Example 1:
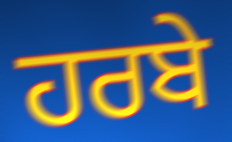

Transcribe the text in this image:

ਹਰਬੇ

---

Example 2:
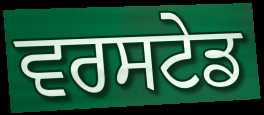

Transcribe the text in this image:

ਵਰਸਟੇਡ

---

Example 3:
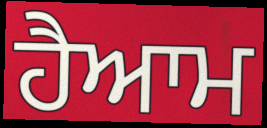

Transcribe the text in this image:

ਹੈਆਮ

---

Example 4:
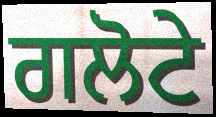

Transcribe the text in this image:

ਗਲੋਟੇ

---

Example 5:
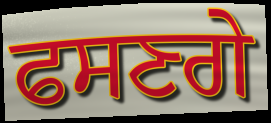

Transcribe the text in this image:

ਫਸਣਗੇ